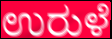
ಉರುಳೆ